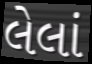
લેલાં